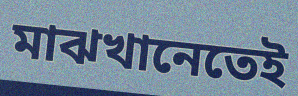
মাঝখানেতেই